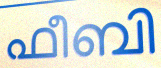
ഫീബി